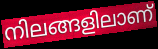
നിലങ്ങളിലാണ്